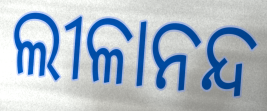
ଲୀଳାନନ୍ଦ